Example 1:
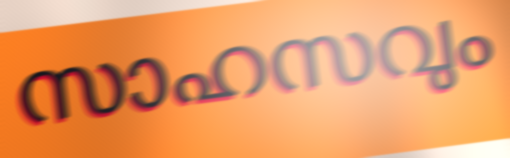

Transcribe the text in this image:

സാഹസവും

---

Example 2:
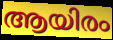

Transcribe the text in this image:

ആയിരം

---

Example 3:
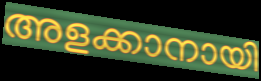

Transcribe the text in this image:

അളക്കാനായി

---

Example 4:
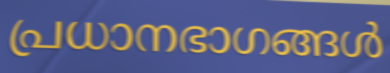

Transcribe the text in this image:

പ്രധാനഭാഗങ്ങൾ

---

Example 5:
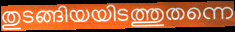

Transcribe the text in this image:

തുടങ്ങിയയിടത്തുതന്നെ